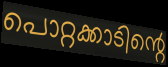
പൊറ്റക്കാടിന്റെ